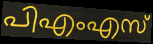
പിഎംഎസ്